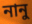
নানু